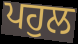
ਪਹੁਲ